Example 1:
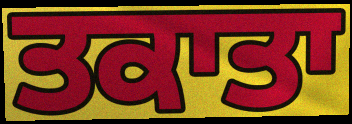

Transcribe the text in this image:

ਤਕਾਤਾ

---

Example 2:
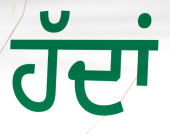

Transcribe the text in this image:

ਹੱਦਾਂ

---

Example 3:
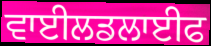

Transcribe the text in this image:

ਵਾਈਲਡਲਾਈਫ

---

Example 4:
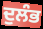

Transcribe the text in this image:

ਦੁਲੰਭ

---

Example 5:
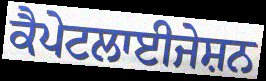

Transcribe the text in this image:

ਕੈਪੇਟਲਾਈਜੇਸ਼ਨ